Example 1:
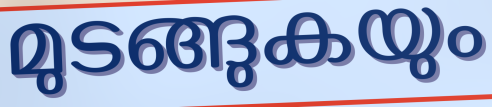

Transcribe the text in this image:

മുടങ്ങുകയും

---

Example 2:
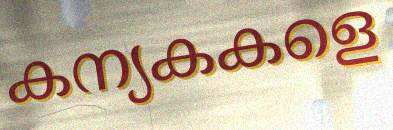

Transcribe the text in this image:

കന്യകകളെ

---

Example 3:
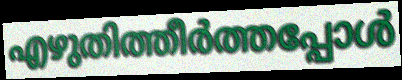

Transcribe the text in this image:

എഴുതിത്തീർത്തപ്പോൾ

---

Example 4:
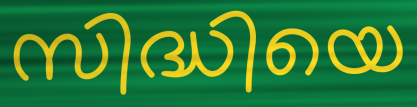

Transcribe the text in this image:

സിദ്ധിയെ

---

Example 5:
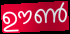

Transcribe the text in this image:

ഊൺ